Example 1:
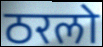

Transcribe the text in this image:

ठरलो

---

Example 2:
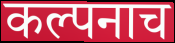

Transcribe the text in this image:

कल्पनाच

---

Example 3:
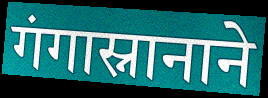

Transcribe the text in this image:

गंगास्नानाने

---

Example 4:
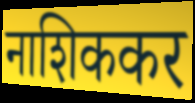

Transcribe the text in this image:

नाशिककर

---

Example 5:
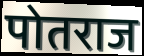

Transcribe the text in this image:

पोतराज